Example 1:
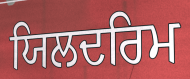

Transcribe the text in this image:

ਯਿਲਦਰਿਮ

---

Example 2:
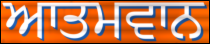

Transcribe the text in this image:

ਆਤਮਵਾਨ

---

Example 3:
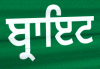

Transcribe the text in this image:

ਬ੍ਰਾਇਟ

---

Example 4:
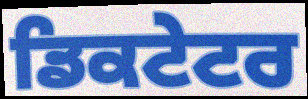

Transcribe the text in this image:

ਡਿਕਟੇਟਰ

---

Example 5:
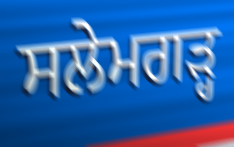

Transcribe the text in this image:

ਸਲੇਮਗੜ੍ਹ